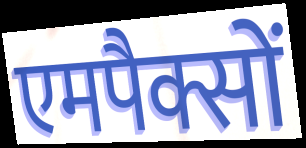
एमपैक्सों